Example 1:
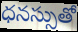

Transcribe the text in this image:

ధనస్సుతో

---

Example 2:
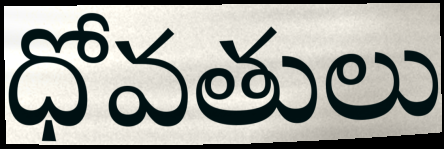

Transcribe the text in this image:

ధోవతులు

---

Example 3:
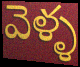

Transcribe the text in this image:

వెళ్ళ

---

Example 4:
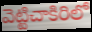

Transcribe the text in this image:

వెట్టిచాకిరిలో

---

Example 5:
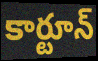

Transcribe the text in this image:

కార్టూన్